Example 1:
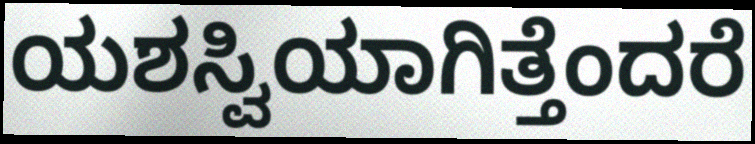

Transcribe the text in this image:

ಯಶಸ್ವಿಯಾಗಿತ್ತೆಂದರೆ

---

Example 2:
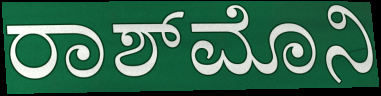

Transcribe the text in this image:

ರಾಶ್‌ಮೊನಿ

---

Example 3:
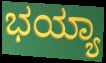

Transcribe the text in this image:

ಭಯ್ಯಾ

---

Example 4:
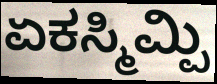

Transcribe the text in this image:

ಏಕಸ್ಮಿಮ್ಪಿ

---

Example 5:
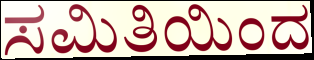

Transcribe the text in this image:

ಸಮಿತಿಯಿಂದ